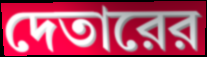
দেতারের